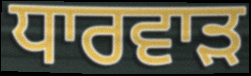
ਧਾਰਵਾੜ